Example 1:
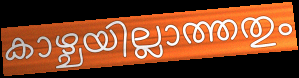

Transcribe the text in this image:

കാഴ്ചയില്ലാത്തതും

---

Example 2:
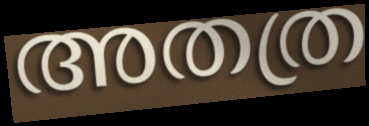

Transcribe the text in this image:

അതത്ര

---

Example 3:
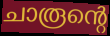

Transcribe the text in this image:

ചാരൂന്റെ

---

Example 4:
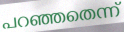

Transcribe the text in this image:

പറഞ്ഞതെന്ന്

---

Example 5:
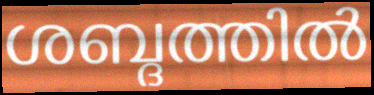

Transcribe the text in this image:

ശബ്ദത്തിൽ